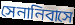
সেনানিবাসে